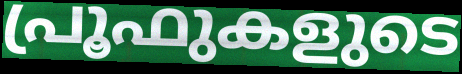
പ്രൂഫുകളുടെ